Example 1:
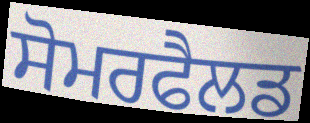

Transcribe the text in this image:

ਸੋਮਰਫੈਲਡ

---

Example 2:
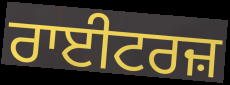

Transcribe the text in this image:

ਰਾਈਟਰਜ਼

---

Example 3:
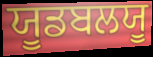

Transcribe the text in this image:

ਯੂਡਬਲਯੂ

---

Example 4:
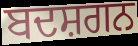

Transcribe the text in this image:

ਬਦਸ਼ਗਨ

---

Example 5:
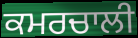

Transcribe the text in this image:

ਕਮਰਚਾਲੀ